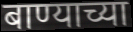
बाण्याच्या